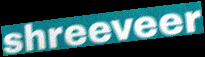
shreeveer